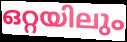
ഒറ്റയിലും